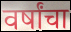
वर्षांचा